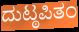
ದುಟ್ಠಪಿತಂ